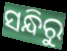
ସନ୍ଧିରୁ